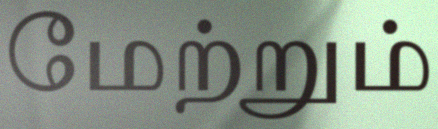
மேற்றும்